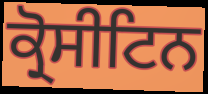
ਕ੍ਰੋਸੀਟਿਨ